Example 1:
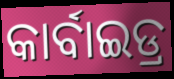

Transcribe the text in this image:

କାର୍ବାଇଡ୍ର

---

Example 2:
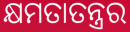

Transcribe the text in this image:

କ୍ଷମତାତନ୍ତ୍ରର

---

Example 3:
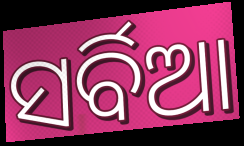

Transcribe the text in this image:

ସର୍ବିଆ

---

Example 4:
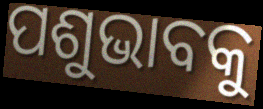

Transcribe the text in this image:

ପଶୁଭାବକୁ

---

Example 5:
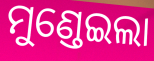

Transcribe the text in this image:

ମୁଣ୍ଡେଇଲା